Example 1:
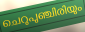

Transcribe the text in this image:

ചെറുപുഞ്ചിരിയും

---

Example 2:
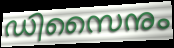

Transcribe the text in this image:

ഡിസൈനും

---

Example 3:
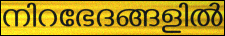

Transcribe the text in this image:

നിറഭേദങ്ങളിൽ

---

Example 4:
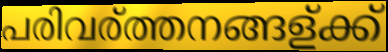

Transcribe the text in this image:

പരിവര്ത്തനങ്ങള്ക്ക്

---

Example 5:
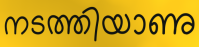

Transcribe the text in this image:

നടത്തിയാണു